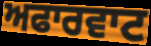
ਅਫਾਰਵਾਟ